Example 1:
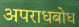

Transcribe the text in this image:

अपराधबोध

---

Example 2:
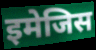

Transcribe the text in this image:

इमेजिस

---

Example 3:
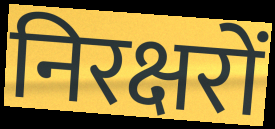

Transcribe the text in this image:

निरक्षरों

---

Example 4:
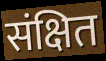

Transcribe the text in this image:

संक्षित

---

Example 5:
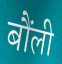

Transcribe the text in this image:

बौंली